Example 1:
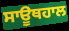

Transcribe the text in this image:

ਸਾਊਥਹਾਲ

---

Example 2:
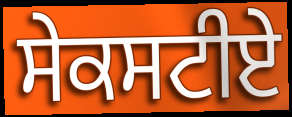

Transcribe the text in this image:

ਸੇਕਸਟੀਏ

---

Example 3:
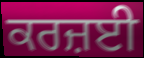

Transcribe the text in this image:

ਕਰਜ਼ਈ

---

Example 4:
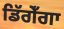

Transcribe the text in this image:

ਡਿੱਗੇਁਗਾ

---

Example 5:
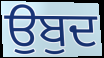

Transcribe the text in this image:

ਉਬੁਦ